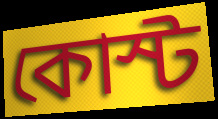
কোস্ট